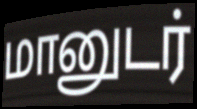
மானுடர்